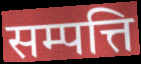
सम्पत्ति